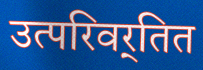
उत्परिवर्तित